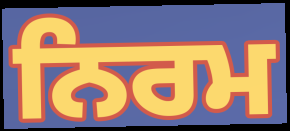
ਨਿਰਮ